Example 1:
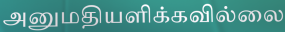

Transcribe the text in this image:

அனுமதியளிக்கவில்லை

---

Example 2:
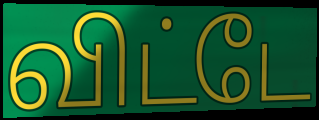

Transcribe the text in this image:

விட்டே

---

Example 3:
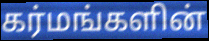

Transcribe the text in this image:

கர்மங்களின்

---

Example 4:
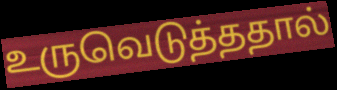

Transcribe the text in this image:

உருவெடுத்ததால்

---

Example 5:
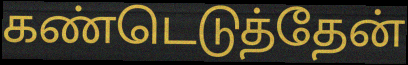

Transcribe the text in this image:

கண்டெடுத்தேன்